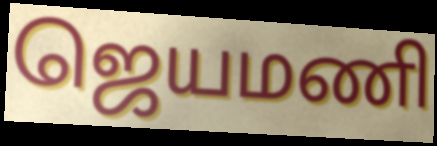
ஜெயமணி